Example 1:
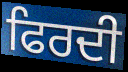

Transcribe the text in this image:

ਫਿਰਦੀ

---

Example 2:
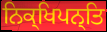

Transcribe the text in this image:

ਨਿਕ੍ਖਿਪਨ੍ਤਿ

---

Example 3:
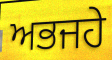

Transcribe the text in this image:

ਅਭਜਹੇ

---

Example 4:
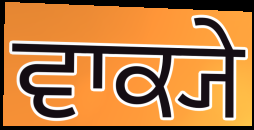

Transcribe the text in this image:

ਵਾਕ੍ਯੇ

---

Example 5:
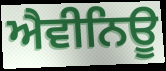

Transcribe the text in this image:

ਐਵੀਨਿਊ